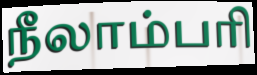
நீலாம்பரி